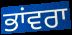
ਭਾਂਵਰਾ